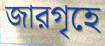
জারগৃহে